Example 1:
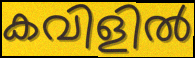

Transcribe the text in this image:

കവിളിൽ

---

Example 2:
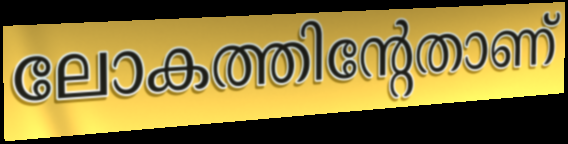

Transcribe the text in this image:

ലോകത്തിന്റേതാണ്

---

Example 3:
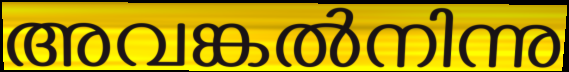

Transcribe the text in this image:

അവങ്കൽനിന്നു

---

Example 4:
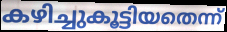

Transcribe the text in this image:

കഴിച്ചുകൂട്ടിയതെന്ന്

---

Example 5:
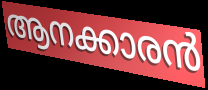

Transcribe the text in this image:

ആനക്കാരൻ